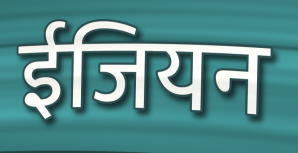
ईजियन